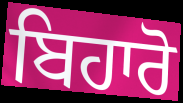
ਬਿਹਾਰੋ